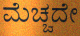
ಮೆಚ್ಚದೇ